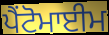
ਪੈਂਟੋਮਾਈਮ